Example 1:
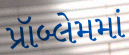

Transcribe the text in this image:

પ્રૉબ્લેમમાં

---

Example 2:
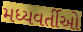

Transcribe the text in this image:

મધ્યવર્તીઓ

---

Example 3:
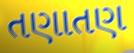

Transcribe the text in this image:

તણાતણ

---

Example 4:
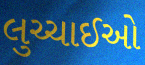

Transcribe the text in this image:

લુચ્ચાઈઓ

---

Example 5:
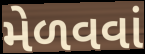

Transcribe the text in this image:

મેળવવાં